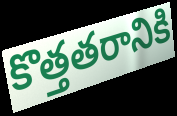
కొత్తతరానికి